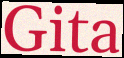
Gita